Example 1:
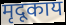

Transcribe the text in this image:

मृदूकाय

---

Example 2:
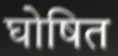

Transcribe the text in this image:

घोषित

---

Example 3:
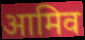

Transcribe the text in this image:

आमिव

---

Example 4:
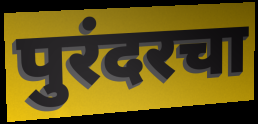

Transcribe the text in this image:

पुरंदरचा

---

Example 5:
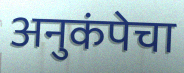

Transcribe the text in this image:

अनुकंपेचा